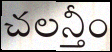
చలన్తీం